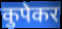
कुपेकर